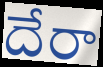
దేరా